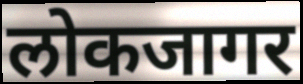
लोकजागर